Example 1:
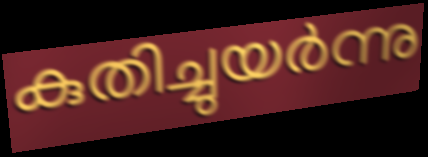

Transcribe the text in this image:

കുതിച്ചുയർന്നു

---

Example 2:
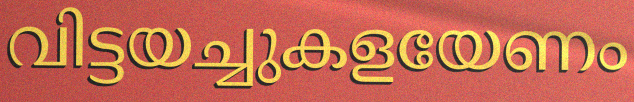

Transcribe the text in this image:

വിട്ടയച്ചുകളയേണം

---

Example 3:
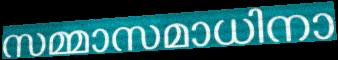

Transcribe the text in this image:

സമ്മാസമാധിനാ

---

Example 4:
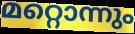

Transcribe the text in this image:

മറ്റൊന്നും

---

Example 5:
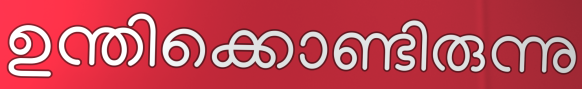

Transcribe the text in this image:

ഉന്തിക്കൊണ്ടിരുന്നു